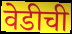
वेडीची